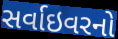
સર્વાઇવરનો